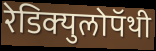
रेडिक्युलोपॅथी